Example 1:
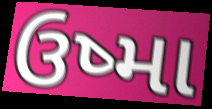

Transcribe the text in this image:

ઉષ્મા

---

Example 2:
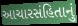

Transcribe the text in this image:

આચારસંહિતાનું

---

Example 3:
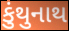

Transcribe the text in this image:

કુંથુનાથ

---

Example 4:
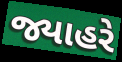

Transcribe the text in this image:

જ્યાહરે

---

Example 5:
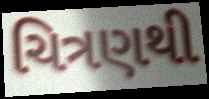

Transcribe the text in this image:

ચિત્રણથી